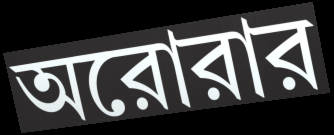
অরোরার